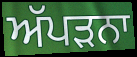
ਅੱਪੜਨਾ